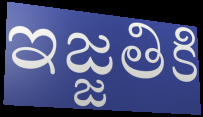
ఇజ్జతికి